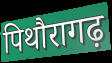
पिथौरागढ़